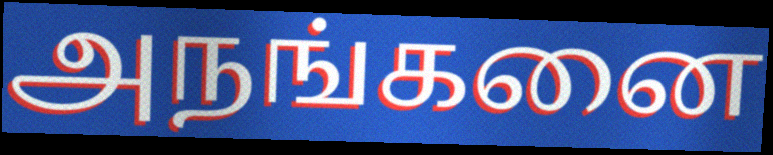
அநங்கனை